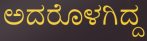
ಅದರೊಳಗಿದ್ದ